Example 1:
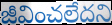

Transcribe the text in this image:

జీవించలేదని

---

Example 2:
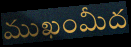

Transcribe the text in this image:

ముఖంమీద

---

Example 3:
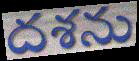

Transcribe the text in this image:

దశను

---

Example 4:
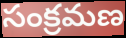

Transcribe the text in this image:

సంక్రమణ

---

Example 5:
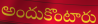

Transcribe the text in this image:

అందుకొంటారు